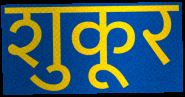
शुकूर